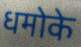
धमोके